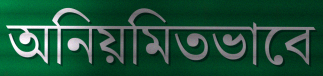
অনিয়মিতভাবে